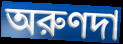
অরুণদা